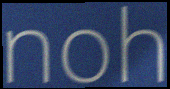
noh